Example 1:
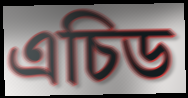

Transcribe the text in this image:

এচিড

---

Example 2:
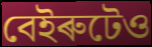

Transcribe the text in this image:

বেইৰুটেও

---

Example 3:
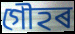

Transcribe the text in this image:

গৌহৰ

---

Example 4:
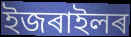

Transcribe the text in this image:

ইজৰাইলৰ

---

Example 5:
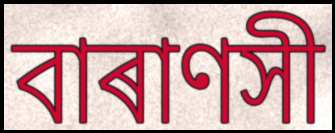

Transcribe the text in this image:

বাৰাণসী